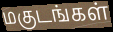
மகுடங்கள்